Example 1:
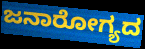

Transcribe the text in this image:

ಜನಾರೋಗ್ಯದ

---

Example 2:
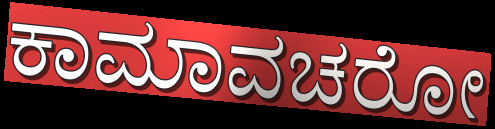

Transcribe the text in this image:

ಕಾಮಾವಚರೋ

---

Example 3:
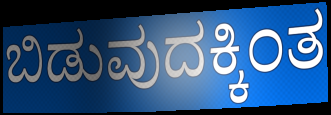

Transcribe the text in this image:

ಬಿಡುವುದಕ್ಕಿಂತ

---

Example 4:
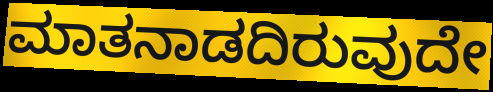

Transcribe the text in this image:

ಮಾತನಾಡದಿರುವುದೇ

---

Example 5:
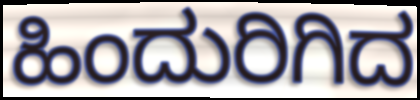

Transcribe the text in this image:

ಹಿಂದುರಿಗಿದ